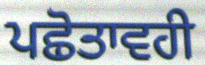
ਪਛੋਤਾਵਹੀ